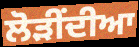
ਲੋੜੀਂਦੀਆ